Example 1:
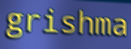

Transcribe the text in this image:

grishma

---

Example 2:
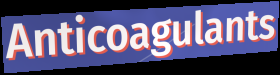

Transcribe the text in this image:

Anticoagulants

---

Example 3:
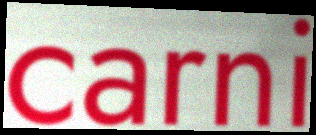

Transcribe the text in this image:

carni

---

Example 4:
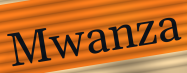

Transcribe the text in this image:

Mwanza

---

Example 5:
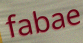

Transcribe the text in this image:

fabae